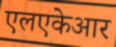
एलएकेआर